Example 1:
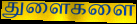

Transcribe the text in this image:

துளைகளை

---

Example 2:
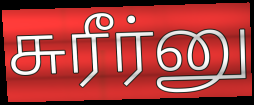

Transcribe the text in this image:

சுரீர்னு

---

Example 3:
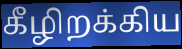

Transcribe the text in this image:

கீழிறக்கிய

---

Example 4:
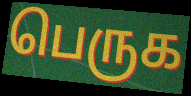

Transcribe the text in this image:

பெருக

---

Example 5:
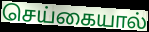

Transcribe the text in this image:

செய்கையால்